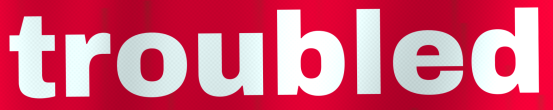
troubled